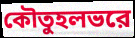
কৌতুহলভরে